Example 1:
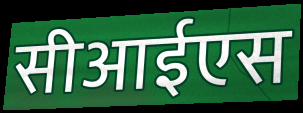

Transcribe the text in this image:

सीआईएस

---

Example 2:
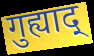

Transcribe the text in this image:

गुह्याद्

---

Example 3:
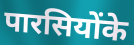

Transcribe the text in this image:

पारसियोंके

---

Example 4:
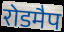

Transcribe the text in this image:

रोडमैप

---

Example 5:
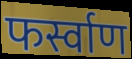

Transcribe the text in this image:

फर्स्वाण